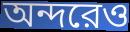
অন্দরেও